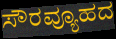
ಸೌರವ್ಯೂಹದ